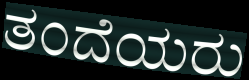
ತಂದೆಯರು